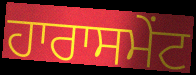
ਹਾਰਾਸਮੇਂਟ